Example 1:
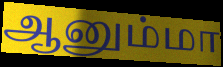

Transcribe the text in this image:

ஆனும்மா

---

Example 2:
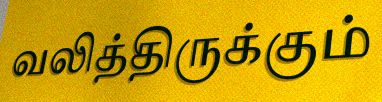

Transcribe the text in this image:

வலித்திருக்கும்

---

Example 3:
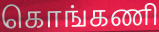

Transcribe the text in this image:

கொங்கணி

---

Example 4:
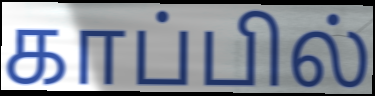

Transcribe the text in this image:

காப்பில்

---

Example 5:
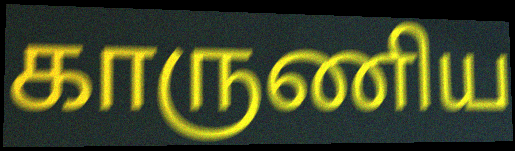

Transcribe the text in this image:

காருணிய